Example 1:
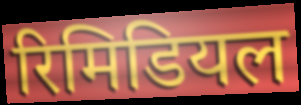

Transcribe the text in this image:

रिमिडियल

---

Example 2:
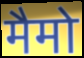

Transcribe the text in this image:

मैमो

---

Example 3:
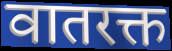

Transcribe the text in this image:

वातरक्त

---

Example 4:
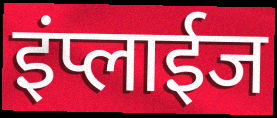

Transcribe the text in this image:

इंप्लाईज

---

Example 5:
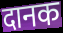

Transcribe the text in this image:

दानक